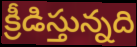
క్రీడిస్తున్నది